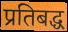
प्रतिबद्ध